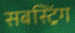
सबस्ट्रिंग